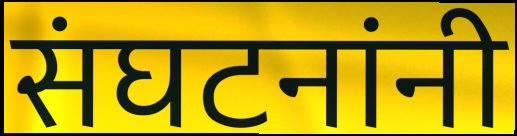
संघटनांनी